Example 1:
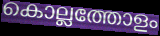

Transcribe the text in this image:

കൊല്ലത്തോളം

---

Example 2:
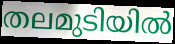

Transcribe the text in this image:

തലമുടിയിൽ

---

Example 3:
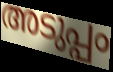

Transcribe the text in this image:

അടുപ്പം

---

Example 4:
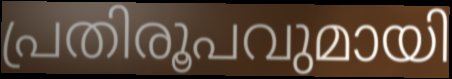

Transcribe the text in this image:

പ്രതിരൂപവുമായി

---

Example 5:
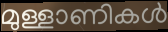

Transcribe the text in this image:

മുള്ളാണികൾ